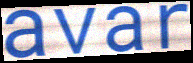
avar